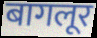
बागलूर